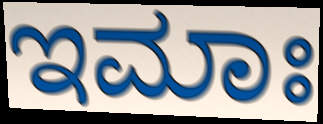
ಇಮಾಃ